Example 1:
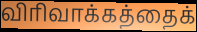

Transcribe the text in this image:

விரிவாக்கத்தைக்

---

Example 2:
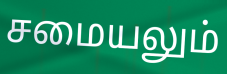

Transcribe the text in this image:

சமையலும்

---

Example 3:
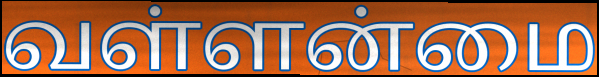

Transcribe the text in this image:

வள்ளன்மை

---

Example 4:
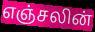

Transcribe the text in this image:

எஞ்சலின்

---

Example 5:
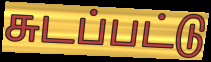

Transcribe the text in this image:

சுடப்பட்டு